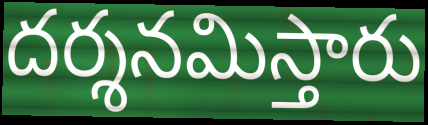
దర్శనమిస్తారు